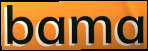
bama